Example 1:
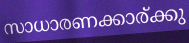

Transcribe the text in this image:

സാധാരണക്കാര്ക്കു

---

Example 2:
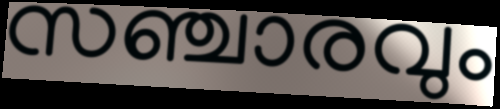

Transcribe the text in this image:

സഞ്ചാരവും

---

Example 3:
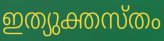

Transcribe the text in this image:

ഇത്യുക്തസ്തം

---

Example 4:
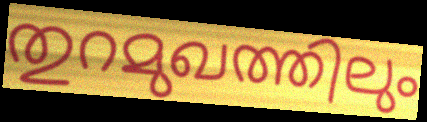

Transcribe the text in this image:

തുറമുഖത്തിലും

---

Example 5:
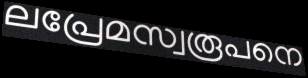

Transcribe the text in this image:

ലപ്രേമസ്വരൂപനെ